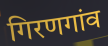
गिरणगांव